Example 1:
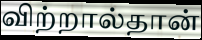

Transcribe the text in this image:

விற்றால்தான்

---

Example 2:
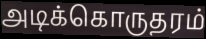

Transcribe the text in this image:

அடிக்கொருதரம்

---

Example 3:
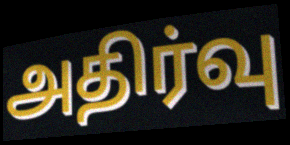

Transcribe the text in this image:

அதிர்வு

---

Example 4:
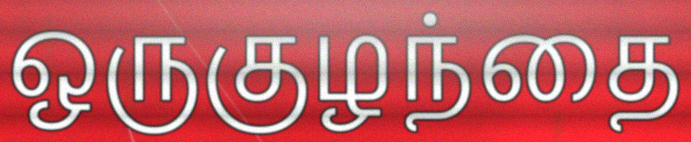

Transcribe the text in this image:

ஒருகுழந்தை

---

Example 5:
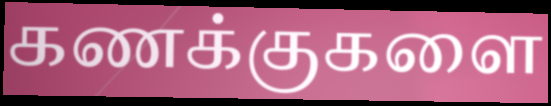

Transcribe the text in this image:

கணக்குகளை